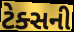
ટેક્સની